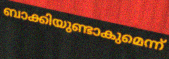
ബാക്കിയുണ്ടാകുമെന്ന്